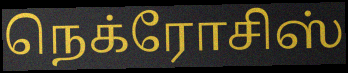
நெக்ரோசிஸ்